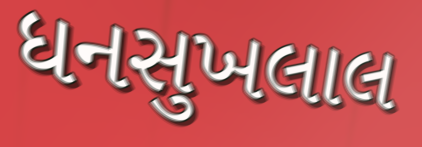
ધનસુખલાલ